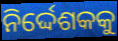
ନିର୍ଦ୍ଦେଶକକୁ